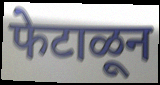
फेटाळून